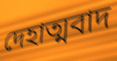
দেহাত্মবাদ